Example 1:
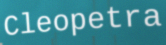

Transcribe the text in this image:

Cleopetra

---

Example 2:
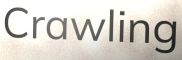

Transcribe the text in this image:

Crawling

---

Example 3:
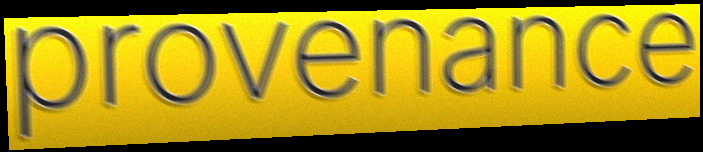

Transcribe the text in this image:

provenance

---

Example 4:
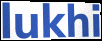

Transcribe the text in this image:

lukhi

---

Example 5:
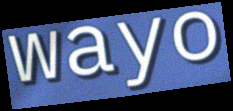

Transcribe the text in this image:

wayo